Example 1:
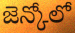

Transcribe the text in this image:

జెన్కోలో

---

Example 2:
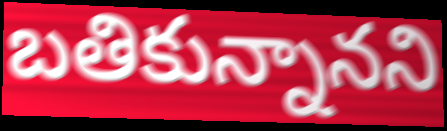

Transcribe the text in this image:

బతికున్నానని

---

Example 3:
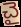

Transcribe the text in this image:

చై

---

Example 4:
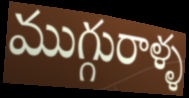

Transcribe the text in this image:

ముగ్గురాళ్ళ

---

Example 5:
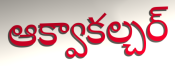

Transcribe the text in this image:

ఆక్వాకల్చర్